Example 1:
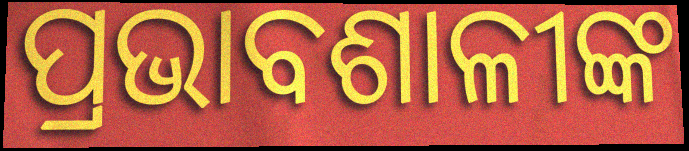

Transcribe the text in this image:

ପ୍ରଭାବଶାଳୀଙ୍କ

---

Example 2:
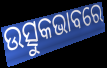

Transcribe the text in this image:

ଉତ୍ସୁକଭାବରେ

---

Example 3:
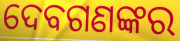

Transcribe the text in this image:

ଦେବଗଣଙ୍କର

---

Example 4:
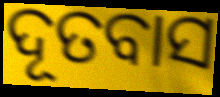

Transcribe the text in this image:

ଦୂତବାସ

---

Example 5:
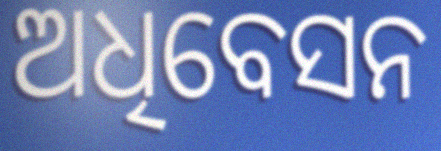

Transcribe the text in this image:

ଅଧିବେସନ